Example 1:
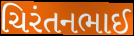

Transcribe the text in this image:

ચિરંતનભાઈ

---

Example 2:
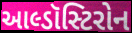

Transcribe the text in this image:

આલ્ડૉસ્ટિરોન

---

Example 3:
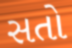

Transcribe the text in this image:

સતો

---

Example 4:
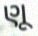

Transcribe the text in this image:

ણૂ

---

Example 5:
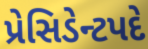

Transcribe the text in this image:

પ્રેસિડેન્ટપદે